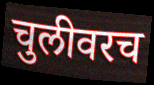
चुलीवरच